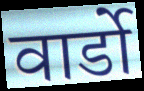
वार्डो